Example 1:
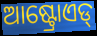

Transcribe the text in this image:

ଆଷ୍ଟ୍ରୋଏଡ୍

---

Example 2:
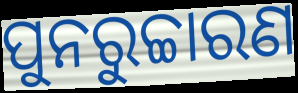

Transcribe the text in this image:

ପୁନରୁଚ୍ଚାରଣ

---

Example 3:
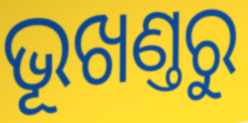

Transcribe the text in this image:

ଭୂଖଣ୍ତରୁ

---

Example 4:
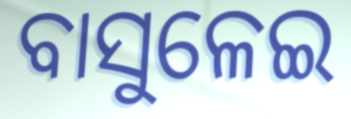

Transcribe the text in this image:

ବାସୁଳେଇ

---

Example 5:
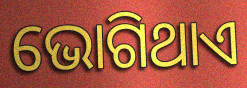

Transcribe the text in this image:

ଭୋଗିଥାଏ